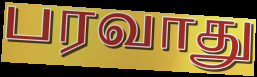
பரவாது